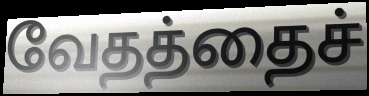
வேதத்தைச்